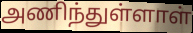
அணிந்துள்ளாள்